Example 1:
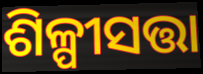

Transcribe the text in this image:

ଶିଳ୍ପୀସତ୍ତା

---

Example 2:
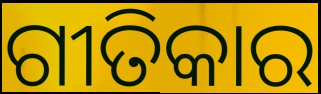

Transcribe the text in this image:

ଗୀତିକାର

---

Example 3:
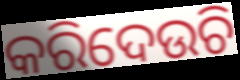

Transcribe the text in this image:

କରିଦେଉଚି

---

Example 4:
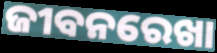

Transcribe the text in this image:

ଜୀବନରେଖା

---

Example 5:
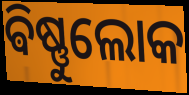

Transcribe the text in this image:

ଵିଷ୍ଣୁଲୋକ